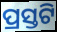
ପ୍ରସ୍ତଟି